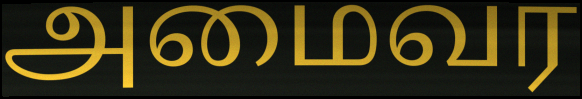
அமைவர